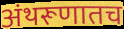
अंथरूणातच